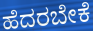
ಹೆದರಬೇಕೆ